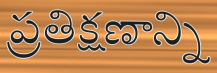
ప్రతిక్షణాన్ని